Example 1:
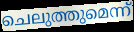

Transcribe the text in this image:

ചെലുത്തുമെന്ന്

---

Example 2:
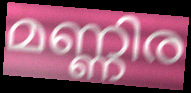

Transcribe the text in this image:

മണ്ണിര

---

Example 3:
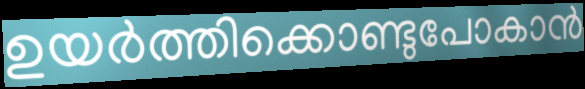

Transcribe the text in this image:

ഉയർത്തിക്കൊണ്ടുപോകാൻ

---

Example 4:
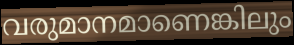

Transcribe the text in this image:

വരുമാനമാണെങ്കിലും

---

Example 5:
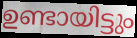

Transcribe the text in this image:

ഉണ്ടായിട്ടും